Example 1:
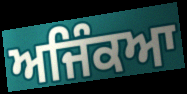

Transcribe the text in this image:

ਅਜਿੰਕਆ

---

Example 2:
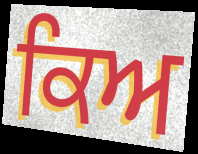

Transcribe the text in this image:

ਕਿਅ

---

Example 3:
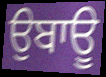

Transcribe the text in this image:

ਉਬਾਊ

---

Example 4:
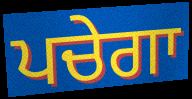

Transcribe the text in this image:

ਪਚੇਗਾ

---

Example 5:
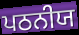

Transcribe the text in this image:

ਪਠਨੀਯ